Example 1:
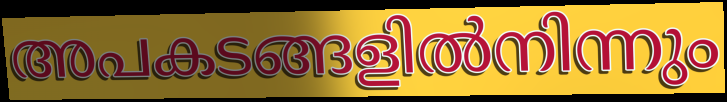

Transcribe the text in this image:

അപകടങ്ങളിൽനിന്നും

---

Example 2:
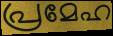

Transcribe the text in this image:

പ്രമേഹ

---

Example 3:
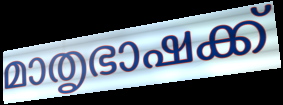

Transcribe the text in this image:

മാതൃഭാഷക്ക്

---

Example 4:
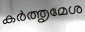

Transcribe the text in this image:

കർത്തൃമേശ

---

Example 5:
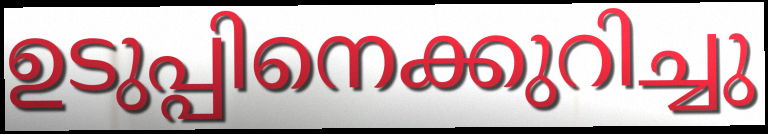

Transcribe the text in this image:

ഉടുപ്പിനെക്കുറിച്ചു